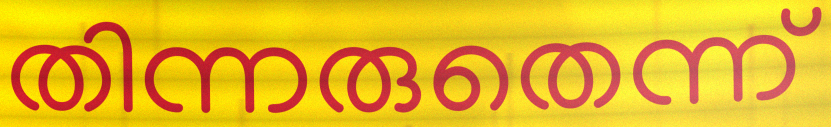
തിന്നരുതെന്ന്